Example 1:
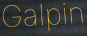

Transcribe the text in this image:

Galpin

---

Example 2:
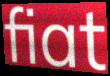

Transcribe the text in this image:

fiat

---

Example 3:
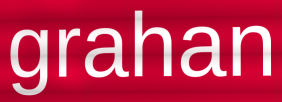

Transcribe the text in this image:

grahan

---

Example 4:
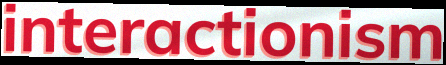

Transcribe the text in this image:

interactionism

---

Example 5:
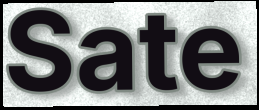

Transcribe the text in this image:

Sate